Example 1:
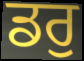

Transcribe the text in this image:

ਡਰੁ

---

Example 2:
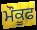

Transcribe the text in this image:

ਮੌਕੂਫ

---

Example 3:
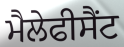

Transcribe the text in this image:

ਮੈਲੇਫੀਸੈਂਟ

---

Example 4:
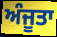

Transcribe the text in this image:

ਅੰਜੂਤਾ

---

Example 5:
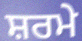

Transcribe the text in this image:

ਸ਼ਰਮੇ